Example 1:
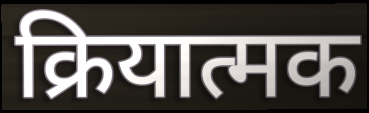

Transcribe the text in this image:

क्रियात्मक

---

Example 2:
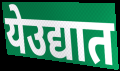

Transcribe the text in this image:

येउद्यात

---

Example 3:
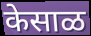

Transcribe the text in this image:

केसाळ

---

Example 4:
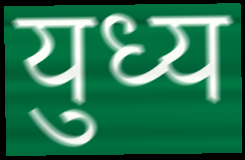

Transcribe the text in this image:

युध्य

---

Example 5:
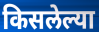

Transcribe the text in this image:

किसलेल्या